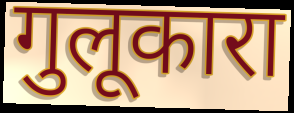
गुलूकारा